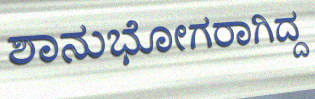
ಶಾನುಭೋಗರಾಗಿದ್ದ